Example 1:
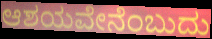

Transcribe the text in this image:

ಆಶಯವೇನೆಂಬುದು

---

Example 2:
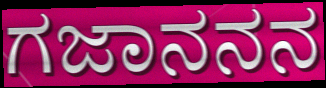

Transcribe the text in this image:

ಗಜಾನನನ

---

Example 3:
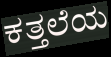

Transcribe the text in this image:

ಕತ್ತಲೆಯ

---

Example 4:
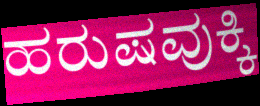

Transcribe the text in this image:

ಹರುಷವುಕ್ಕಿ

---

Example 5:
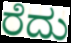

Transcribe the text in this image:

ರೆದು